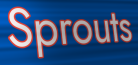
Sprouts